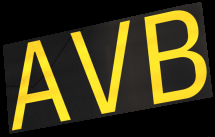
AVB